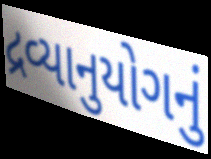
દ્રવ્યાનુયોગનું